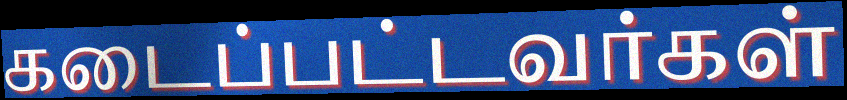
கடைப்பட்டவர்கள்